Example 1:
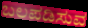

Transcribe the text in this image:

ಬಲಪಡಿಸುವ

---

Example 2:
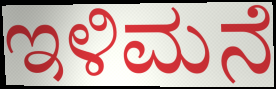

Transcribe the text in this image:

ಇಳಿಮನೆ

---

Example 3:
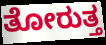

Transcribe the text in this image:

ತೋರುತ್ತ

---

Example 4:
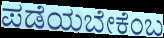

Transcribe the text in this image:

ಪಡೆಯಬೇಕೆಂಬ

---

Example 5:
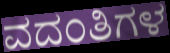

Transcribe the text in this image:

ವದಂತಿಗಳ